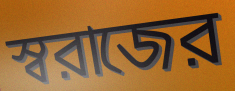
স্বরাজের